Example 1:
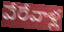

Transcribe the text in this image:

వేరేవాళ్ల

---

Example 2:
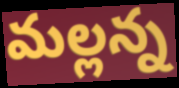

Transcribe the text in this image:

మల్లన్న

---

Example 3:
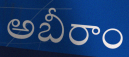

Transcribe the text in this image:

అబీరాం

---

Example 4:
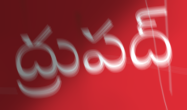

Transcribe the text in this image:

ద్రుపద్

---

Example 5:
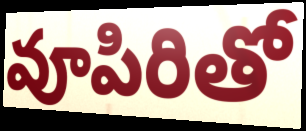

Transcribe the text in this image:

వూపిరితో